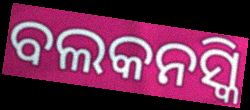
ବଲକନସ୍କି